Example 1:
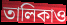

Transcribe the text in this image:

তালিকাও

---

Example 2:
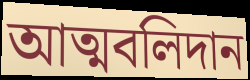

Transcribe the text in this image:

আত্মবলিদান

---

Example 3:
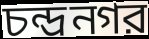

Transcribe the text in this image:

চন্দ্রনগর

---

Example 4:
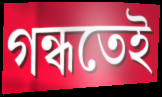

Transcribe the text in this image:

গন্ধতেই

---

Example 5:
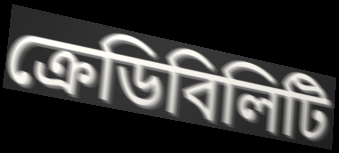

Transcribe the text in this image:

ক্রেডিবিলিটি